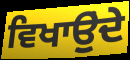
ਵਿਖਾਉੁਂਦੇ